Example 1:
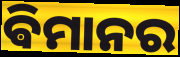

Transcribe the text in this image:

ଵିମାନର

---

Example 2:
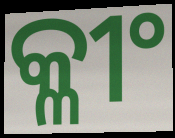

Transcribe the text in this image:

କ୍ଳୀଂ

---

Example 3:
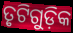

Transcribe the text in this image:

ତୃଟିଗୁଡ଼ିକ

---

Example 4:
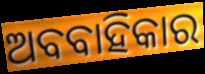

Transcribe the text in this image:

ଅବବାହିକାର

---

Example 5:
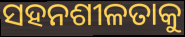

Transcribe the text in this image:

ସହନଶୀଳତାକୁ